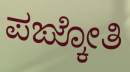
ಪಙ್ಕೋತಿ